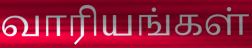
வாரியங்கள்